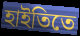
হাইতিতে